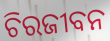
ଚିରଜୀବନ